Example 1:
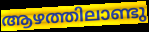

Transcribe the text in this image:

ആഴത്തിലാണ്ടു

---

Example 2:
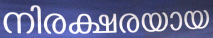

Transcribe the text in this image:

നിരക്ഷരയായ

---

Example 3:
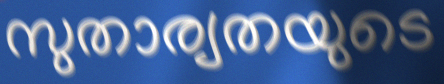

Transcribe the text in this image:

സുതാര്യതയുടെ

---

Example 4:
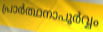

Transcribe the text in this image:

പ്രാർത്ഥനാപൂർവ്വം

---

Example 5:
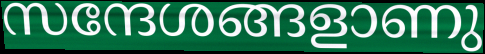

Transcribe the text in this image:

സന്ദേശങ്ങളാണു